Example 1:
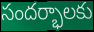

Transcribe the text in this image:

సందర్భాలకు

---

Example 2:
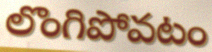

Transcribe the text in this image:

లొంగిపోవటం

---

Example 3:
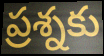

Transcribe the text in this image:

ప్రశ్నకు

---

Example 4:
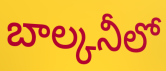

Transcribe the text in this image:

బాల్కనీలో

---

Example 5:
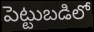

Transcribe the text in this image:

పెట్టుబడిలో